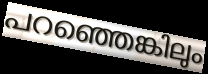
പറഞ്ഞെങ്കിലും